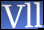
Vll